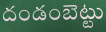
దండంబెట్టు